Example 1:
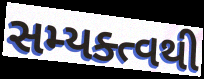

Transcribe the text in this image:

સમ્યક્ત્વથી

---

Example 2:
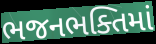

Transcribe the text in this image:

ભજનભક્તિમાં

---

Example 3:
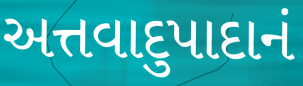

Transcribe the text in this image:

અત્તવાદુપાદાનં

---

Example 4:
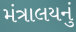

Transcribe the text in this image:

મંત્રાલયનું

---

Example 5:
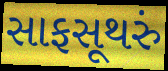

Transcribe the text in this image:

સાફસૂથરું